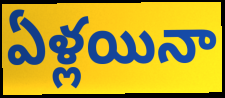
ఏళ్లయినా